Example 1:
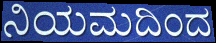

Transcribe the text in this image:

ನಿಯಮದಿಂದ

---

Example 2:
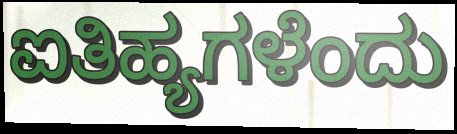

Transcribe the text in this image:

ಐತಿಹ್ಯಗಳೆಂದು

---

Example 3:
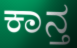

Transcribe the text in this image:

ಕಾನ್ತ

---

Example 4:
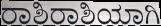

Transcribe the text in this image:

ರಾಶಿರಾಶಿಯಾಗಿ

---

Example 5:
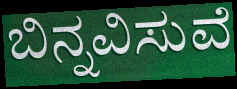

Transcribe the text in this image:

ಬಿನ್ನವಿಸುವೆ